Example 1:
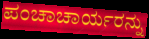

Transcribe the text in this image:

ಪಂಚಾಚಾರ್ಯರನ್ನು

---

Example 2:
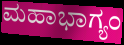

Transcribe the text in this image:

ಮಹಾಭಾಗ್ಯಂ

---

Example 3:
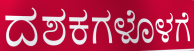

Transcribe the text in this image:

ದಶಕಗಳೊಳಗೆ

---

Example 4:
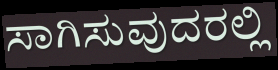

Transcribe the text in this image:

ಸಾಗಿಸುವುದರಲ್ಲಿ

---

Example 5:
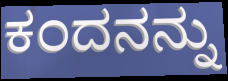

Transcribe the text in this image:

ಕಂದನನ್ನು